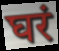
घरं